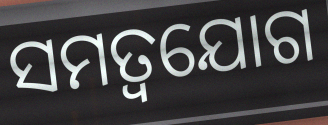
ସମତ୍ୱଯୋଗ